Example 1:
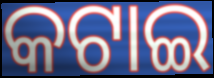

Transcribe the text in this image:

କଟାଇ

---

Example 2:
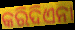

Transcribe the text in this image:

କରିଦିଏନା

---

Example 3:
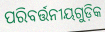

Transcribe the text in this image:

ପରିବର୍ତ୍ତନୀୟଗୁଡ଼ିକ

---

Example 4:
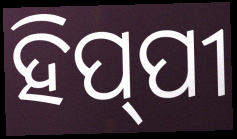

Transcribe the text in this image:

ହିପ୍‍ପୀ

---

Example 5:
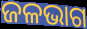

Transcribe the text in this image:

ଜଳଭାଗ